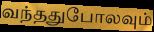
வந்ததுபோலவும்